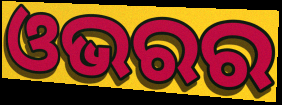
ଓଭରର